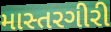
માસ્તરગીરી